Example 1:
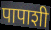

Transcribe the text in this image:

पापाशी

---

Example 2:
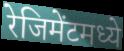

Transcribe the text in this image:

रेजिमेंटमध्ये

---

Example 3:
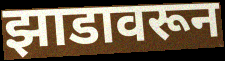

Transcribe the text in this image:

झाडावरून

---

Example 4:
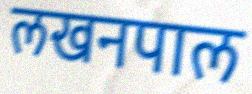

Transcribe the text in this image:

लखनपाल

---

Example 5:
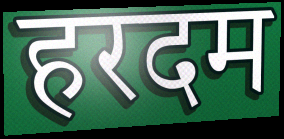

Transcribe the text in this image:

हरदम